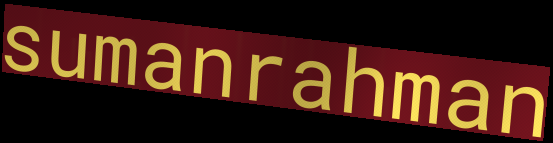
sumanrahman